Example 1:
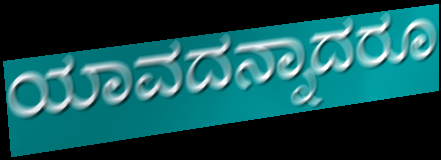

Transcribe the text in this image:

ಯಾವದನ್ನಾದರೂ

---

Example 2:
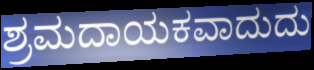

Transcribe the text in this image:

ಶ್ರಮದಾಯಕವಾದುದು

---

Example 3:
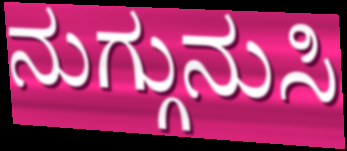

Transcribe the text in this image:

ನುಗ್ಗುನುಸಿ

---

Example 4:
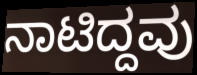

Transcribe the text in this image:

ನಾಟಿದ್ದವು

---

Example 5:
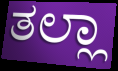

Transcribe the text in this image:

ತಲ್ಲಾ